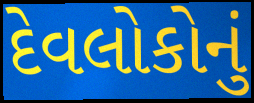
દેવલોકોનું